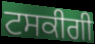
ਟਸਕੀਗੀ